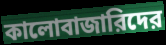
কালোবাজারিদের